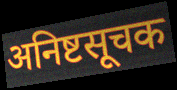
अनिष्टसूचक